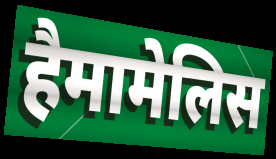
हैमामेलिस